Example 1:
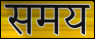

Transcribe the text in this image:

समय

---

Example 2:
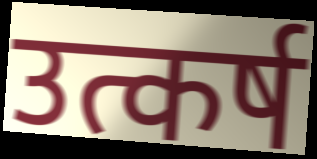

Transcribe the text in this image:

उत्कर्ष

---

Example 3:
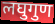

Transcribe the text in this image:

लघुगुण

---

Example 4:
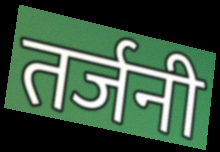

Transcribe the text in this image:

तर्जनी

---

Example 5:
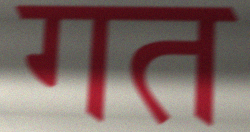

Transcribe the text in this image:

गत